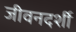
जीवनदर्शी